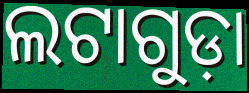
ଲଟାଗୁଡ଼ା